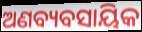
ଅଣବ୍ୟବସାୟିକ